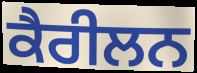
ਕੈਰੀਲਨ